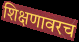
शिक्षणावरच